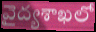
వైద్యశాఖలో